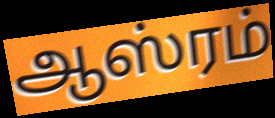
ஆஸ்ரம்